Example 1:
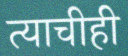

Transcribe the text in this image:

त्याचीही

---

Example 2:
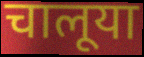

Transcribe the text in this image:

चालूया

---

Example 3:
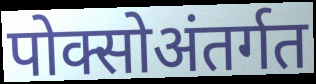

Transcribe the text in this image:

पोक्सोअंतर्गत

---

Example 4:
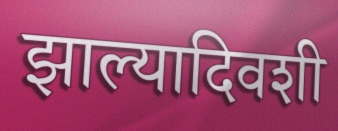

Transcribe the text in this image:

झाल्यादिवशी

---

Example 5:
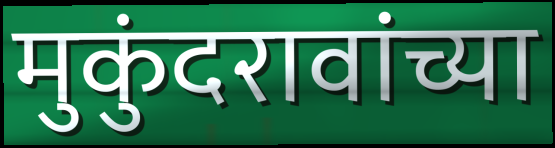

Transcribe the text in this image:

मुकुंदरावांच्या